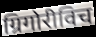
ग्रिगोरीविच